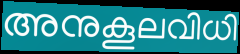
അനുകൂലവിധി